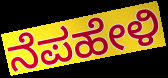
ನೆಪಹೇಳಿ